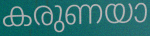
കരുണയാ